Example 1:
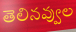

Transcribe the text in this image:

తెలినవ్వుల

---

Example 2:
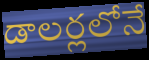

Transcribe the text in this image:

డాలర్లలోనే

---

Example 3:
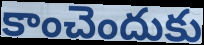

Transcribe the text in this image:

కాంచెందుకు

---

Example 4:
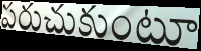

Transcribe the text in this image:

పరుచుకుంటూ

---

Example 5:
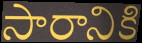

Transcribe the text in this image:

సారానికి